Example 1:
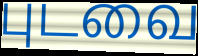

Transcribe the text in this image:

புடவை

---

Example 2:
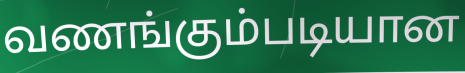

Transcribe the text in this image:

வணங்கும்படியான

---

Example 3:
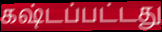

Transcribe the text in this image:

கஷ்டப்பட்டது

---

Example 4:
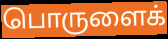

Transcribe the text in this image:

பொருளைக்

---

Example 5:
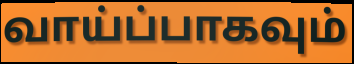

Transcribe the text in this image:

வாய்ப்பாகவும்